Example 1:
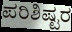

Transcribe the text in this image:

ಪರಿಶಿಷ್ಟರ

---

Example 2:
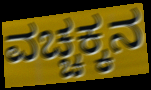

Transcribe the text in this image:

ವಚ್ಚಕ್ಕನ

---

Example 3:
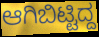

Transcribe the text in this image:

ಆಗಿಬಿಟ್ಟಿದ್ದ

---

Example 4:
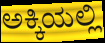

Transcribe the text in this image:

ಅಕ್ಕಿಯಲ್ಲಿ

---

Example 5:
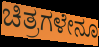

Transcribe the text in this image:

ಚಿತ್ರಗಳೇನೂ